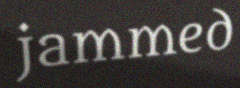
jammed